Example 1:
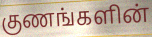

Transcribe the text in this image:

குணங்களின்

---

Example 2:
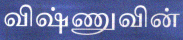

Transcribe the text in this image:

விஷ்ணுவின்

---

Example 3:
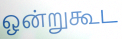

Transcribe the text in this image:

ஒன்றுகூட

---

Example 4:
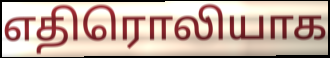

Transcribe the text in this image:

எதிரொலியாக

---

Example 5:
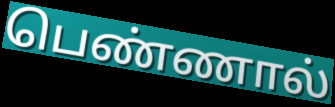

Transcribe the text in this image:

பெண்ணால்